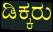
ಡಿಕ್ಕರು